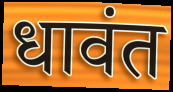
धावंत